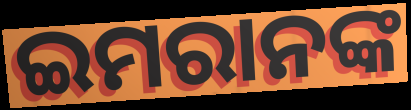
ଇମରାନଙ୍କ